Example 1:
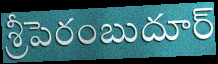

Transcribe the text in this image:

శ్రీపెరంబుదూర్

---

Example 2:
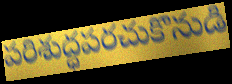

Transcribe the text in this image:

పరిశుద్ధపరచుకొనుడి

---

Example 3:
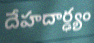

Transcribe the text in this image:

దేహదార్ఢ్యం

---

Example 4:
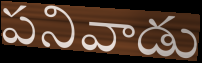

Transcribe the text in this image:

పనివాడు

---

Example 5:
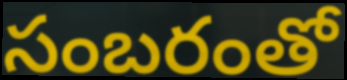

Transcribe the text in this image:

సంబరంతో